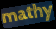
mathy